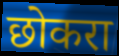
छोकरा